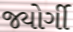
જ્યોર્ગી